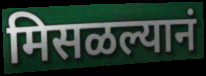
मिसळल्यानं